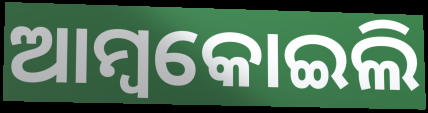
ଆମ୍ବକୋଇଲି